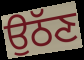
ਉਠੱਣ